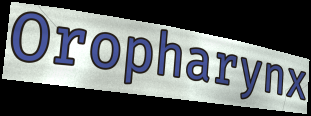
Oropharynx